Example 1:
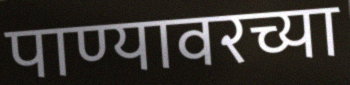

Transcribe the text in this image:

पाण्यावरच्या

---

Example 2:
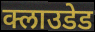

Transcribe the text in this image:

क्लाउडेड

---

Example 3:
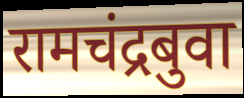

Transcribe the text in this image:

रामचंद्रबुवा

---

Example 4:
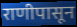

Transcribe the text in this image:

राणीपासून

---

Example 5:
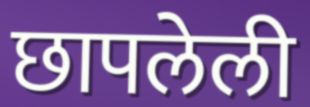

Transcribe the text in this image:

छापलेली